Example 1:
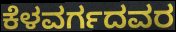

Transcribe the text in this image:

ಕೆಳವರ್ಗದವರ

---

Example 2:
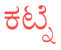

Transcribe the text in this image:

ಕಟ್ನೆ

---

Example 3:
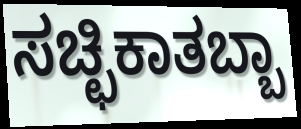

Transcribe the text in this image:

ಸಚ್ಛಿಕಾತಬ್ಬಾ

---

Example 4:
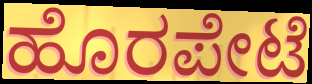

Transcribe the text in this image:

ಹೊರಪೇಟೆ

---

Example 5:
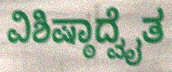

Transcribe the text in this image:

ವಿಶಿಷ್ಠಾದ್ವೈತ